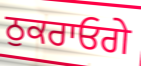
ਠੁਕਰਾਓਗੇ